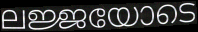
ലജ്ജയോടെ